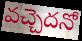
వచ్చెదనో